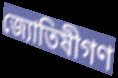
জ্যোতিষীগণ